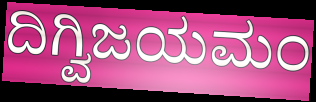
ದಿಗ್ವಿಜಯಮಂ